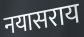
नयासराय